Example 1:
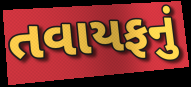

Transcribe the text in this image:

તવાયફનું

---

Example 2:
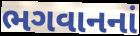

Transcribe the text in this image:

ભગવાનનાં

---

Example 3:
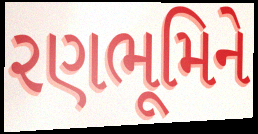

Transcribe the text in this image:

રણભૂમિને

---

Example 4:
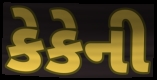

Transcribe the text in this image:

કેકેની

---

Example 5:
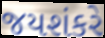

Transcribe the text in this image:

જયશંકરે